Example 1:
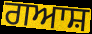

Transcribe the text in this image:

ਗਆਸ਼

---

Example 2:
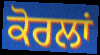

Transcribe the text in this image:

ਕੋਰਲਾਂ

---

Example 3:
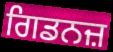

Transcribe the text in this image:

ਗਿਡਨਜ਼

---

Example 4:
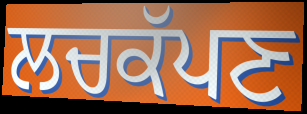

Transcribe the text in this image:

ਲਚਕੱਪਣ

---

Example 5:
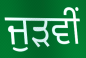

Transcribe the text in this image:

ਜੁੜਵੀਂ